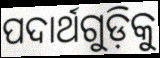
ପଦାର୍ଥଗୁଡ଼ିକୁ